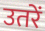
उतरें